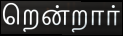
றென்றார்